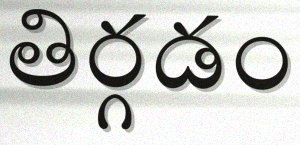
తిర్గడం